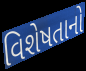
વિશેષતાનો